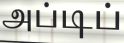
அப்டிப்